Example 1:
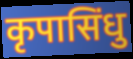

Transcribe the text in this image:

कृपासिंधु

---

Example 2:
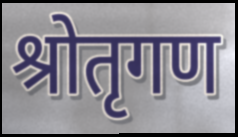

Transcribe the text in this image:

श्रोतृगण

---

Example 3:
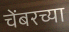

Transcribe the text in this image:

चेंबरच्या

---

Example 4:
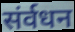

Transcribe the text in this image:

संर्वधन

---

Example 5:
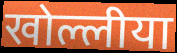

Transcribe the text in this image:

खोल्लीया